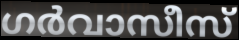
ഗർവാസീസ്